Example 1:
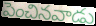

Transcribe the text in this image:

పెంచినవాడు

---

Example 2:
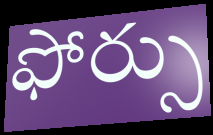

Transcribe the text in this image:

ఫోర్సు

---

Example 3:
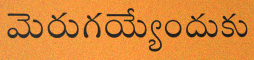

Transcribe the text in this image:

మెరుగయ్యేందుకు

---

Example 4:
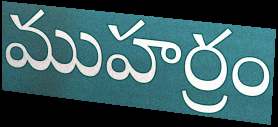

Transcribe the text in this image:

ముహర్రం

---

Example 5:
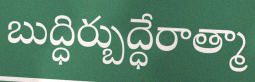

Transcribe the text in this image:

బుద్ధిర్బుద్ధేరాత్మా